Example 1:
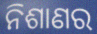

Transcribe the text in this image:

ନିଶାଣର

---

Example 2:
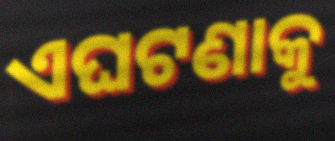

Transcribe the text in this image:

ଏଘଟଣାକୁ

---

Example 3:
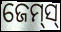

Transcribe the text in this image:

ଜେମ୍‌ସ୍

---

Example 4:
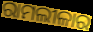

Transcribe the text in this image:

ରାମଲୀଳାର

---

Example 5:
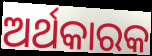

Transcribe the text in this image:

ଅର୍ଥକାରକ